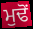
ਮੁਢੋਂ